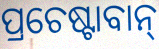
ପ୍ରଚେଷ୍ଟାବାନ୍